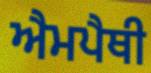
ਐਮਪੈਥੀ